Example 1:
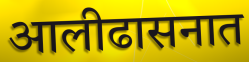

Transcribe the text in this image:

आलीढासनात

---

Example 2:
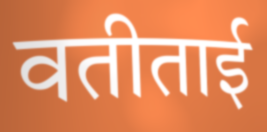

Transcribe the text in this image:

वतीताई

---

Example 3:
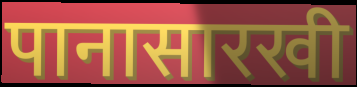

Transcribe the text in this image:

पानासारखी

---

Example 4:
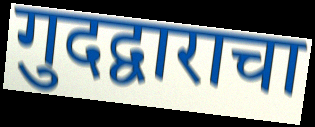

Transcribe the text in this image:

गुदद्वाराचा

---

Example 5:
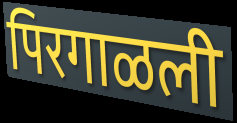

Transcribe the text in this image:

पिरगाळली